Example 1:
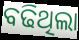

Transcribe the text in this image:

ବଢିଥିଲା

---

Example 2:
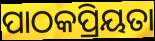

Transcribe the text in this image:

ପାଠକପ୍ରିୟତା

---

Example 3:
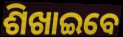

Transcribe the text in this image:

ଶିଖାଇବେ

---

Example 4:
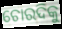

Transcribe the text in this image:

ଚୋରଦିକୁ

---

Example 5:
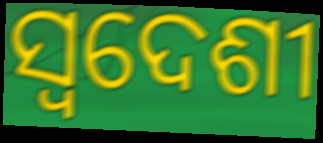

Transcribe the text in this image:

ସ୍ୱଦେଶୀ